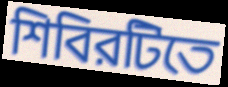
শিবিরটিতে